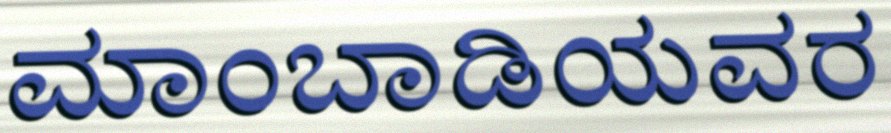
ಮಾಂಬಾಡಿಯವರ